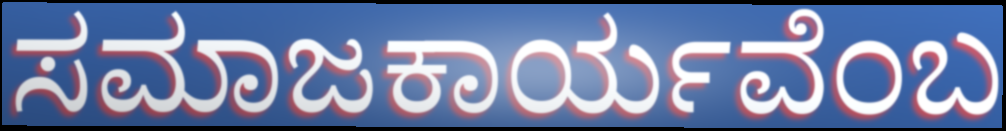
ಸಮಾಜಕಾರ್ಯವೆಂಬ